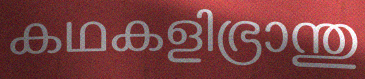
കഥകളിഭ്രാന്തു